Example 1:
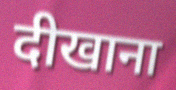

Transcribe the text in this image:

दीखाना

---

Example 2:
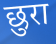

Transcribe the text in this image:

छुरा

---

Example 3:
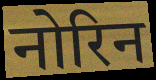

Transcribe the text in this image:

नोरिन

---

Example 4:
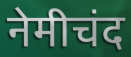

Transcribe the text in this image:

नेमीचंद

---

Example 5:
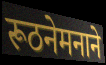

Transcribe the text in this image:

रूठनेमनाने